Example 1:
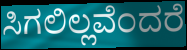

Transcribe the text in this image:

ಸಿಗಲಿಲ್ಲವೆಂದರೆ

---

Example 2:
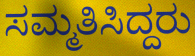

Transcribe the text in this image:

ಸಮ್ಮತಿಸಿದ್ದರು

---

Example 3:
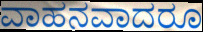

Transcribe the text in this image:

ವಾಹನವಾದರೂ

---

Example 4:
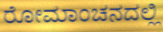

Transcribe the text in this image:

ರೋಮಾಂಚನದಲ್ಲಿ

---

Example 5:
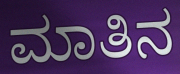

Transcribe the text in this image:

ಮಾತಿನ